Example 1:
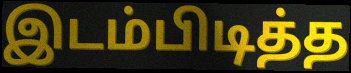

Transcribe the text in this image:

இடம்பிடித்த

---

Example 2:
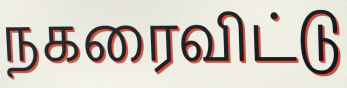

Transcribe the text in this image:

நகரைவிட்டு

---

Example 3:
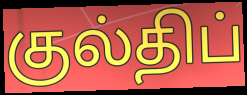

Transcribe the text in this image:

குல்திப்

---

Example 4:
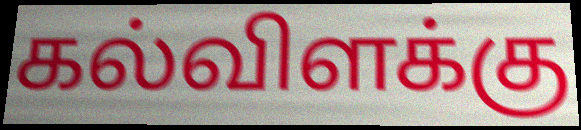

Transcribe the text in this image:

கல்விளக்கு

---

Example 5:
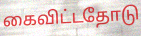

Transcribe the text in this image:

கைவிட்டதோடு